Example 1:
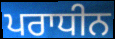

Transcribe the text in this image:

ਪਰਾਧੀਨ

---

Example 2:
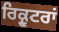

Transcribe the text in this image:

ਰਿਕ੍ਰੂਟਰਾਂ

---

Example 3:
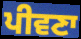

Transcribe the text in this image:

ਪੀਵਣਾ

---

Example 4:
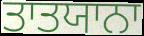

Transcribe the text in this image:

ਤਾਤਯਾਨਾ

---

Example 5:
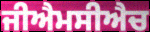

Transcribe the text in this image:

ਜੀਐਮਸੀਐਚ